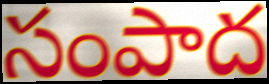
సంపాద